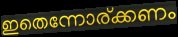
ഇതെന്നോര്ക്കണം